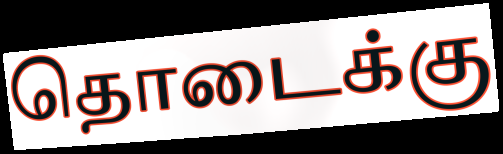
தொடைக்கு